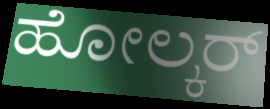
ಹೋಲ್ಕರ್